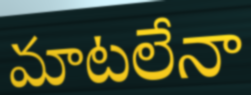
మాటలేనా